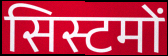
सिस्टमों